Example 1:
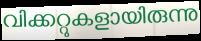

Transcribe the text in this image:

വിക്കറ്റുകളായിരുന്നു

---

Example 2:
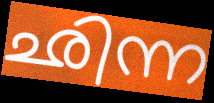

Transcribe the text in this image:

ഛിന്ന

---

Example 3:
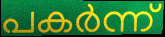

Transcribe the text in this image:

പകർന്ന്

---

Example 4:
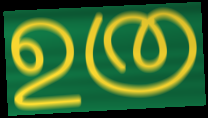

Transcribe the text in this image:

ഉത്ര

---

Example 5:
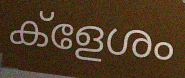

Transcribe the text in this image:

ക്ളേശം